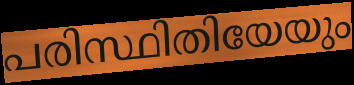
പരിസ്ഥിതിയേയും